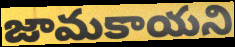
జామకాయని